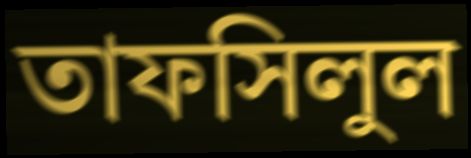
তাফসিলুল